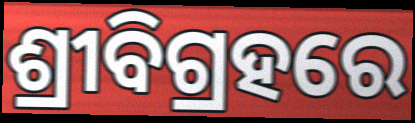
ଶ୍ରୀବିଗ୍ରହରେ